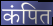
कंपित